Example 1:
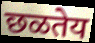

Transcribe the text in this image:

छळतेय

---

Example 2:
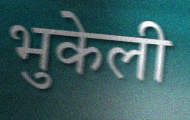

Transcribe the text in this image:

भुकेली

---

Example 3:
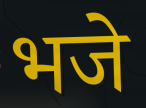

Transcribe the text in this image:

भजे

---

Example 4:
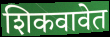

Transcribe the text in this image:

शिकवावेत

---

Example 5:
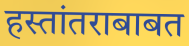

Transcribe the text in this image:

हस्तांतराबाबत